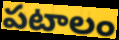
పటాలం